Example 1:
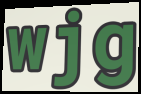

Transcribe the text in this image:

wjg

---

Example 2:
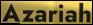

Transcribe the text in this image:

Azariah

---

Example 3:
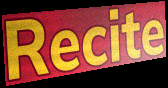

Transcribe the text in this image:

Recite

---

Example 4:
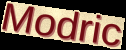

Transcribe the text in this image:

Modric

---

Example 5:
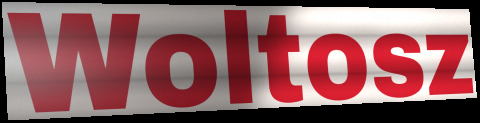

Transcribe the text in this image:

Woltosz